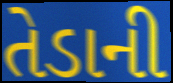
તેડાની